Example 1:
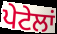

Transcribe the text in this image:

ਪੇਟੇਲਾਂ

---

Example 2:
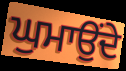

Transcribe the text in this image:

ਘੁਮਾਉਂਦੇ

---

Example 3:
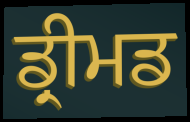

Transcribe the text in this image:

ਡ੍ਰੀਮਡ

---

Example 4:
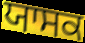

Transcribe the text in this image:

ਯਾਸਕ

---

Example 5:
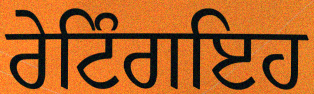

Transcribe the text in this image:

ਰੇਟਿੰਗਇਹ